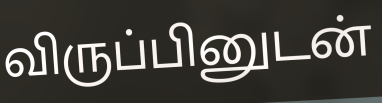
விருப்பினுடன்